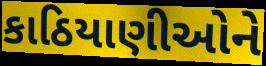
કાઠિયાણીઓને